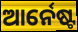
ଆର୍ନେଷ୍ଟ